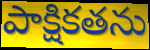
పాక్షికతను